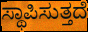
ಸ್ಥಾಪಿಸುತ್ತದೆ